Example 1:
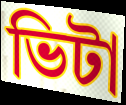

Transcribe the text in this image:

ভিটা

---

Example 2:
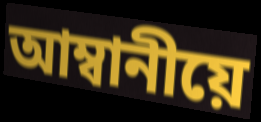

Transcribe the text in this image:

আম্বানীয়ে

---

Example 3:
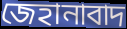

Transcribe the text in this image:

জেহানাবাদ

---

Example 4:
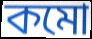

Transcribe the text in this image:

কমো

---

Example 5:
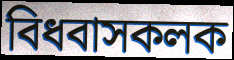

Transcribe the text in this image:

বিধবাসকলক